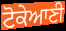
ਟੋਕੇਆਣੀ